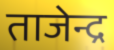
ताजेन्द्र